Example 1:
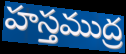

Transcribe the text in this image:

హస్తముద్ర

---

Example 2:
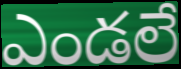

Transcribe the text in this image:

ఎండలే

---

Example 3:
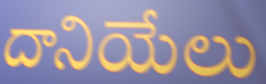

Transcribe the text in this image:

దానియేలు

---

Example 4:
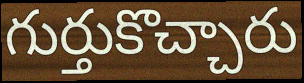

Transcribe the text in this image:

గుర్తుకొచ్చారు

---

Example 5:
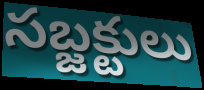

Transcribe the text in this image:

సబ్జక్టులు